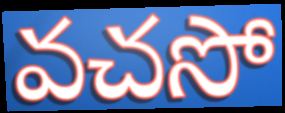
వచసో